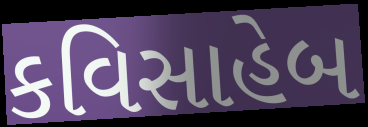
કવિસાહેબ